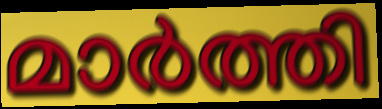
മാർത്തി